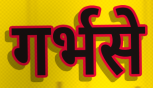
गर्भसे